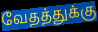
வேதத்துக்கு